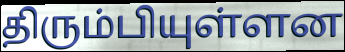
திரும்பியுள்ளன